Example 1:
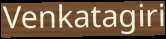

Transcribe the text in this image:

Venkatagiri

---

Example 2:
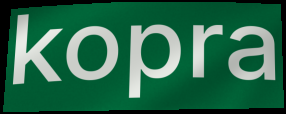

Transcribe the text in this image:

kopra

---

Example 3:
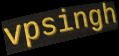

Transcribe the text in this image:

vpsingh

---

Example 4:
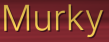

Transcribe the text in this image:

Murky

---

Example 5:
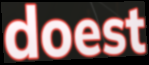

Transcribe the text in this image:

doest